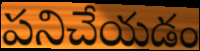
పనిచేయడం